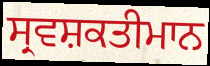
ਸ੍ਰਵਸ਼ਕਤੀਮਾਨ